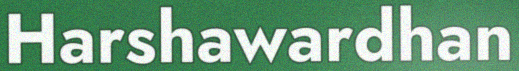
Harshawardhan